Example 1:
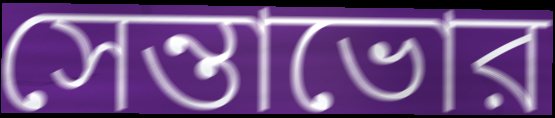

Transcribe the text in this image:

সেন্তাভোর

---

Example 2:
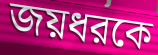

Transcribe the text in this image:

জয়ধরকে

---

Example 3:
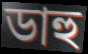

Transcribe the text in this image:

ডাহু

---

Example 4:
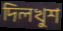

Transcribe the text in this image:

দিলখুশ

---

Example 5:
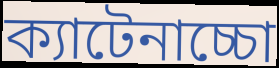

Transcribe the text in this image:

ক্যাটেনাচ্চো